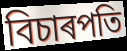
বিচাৰপতি